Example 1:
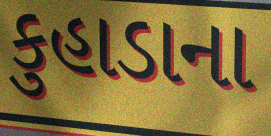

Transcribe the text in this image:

કુહાડાના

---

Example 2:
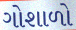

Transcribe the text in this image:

ગોશાળો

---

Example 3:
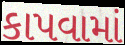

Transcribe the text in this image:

કાપવામાં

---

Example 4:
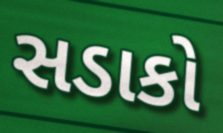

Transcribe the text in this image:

સડાકો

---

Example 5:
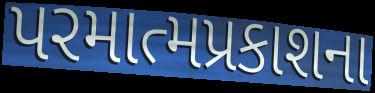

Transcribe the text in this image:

પરમાત્મપ્રકાશના